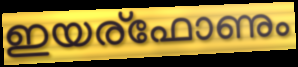
ഇയര്ഫോണും